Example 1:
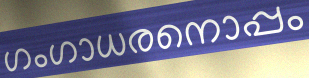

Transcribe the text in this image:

ഗംഗാധരനൊപ്പം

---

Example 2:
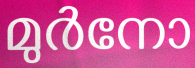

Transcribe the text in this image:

മുർനോ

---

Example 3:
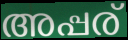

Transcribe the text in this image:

അപ്പര്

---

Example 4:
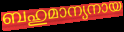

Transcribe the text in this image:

ബഹുമാന്യനായ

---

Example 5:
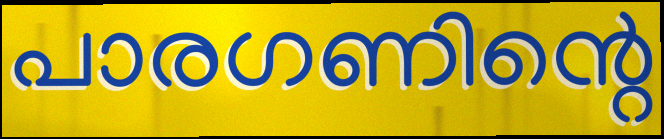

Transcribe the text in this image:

പാരഗണിന്റെ